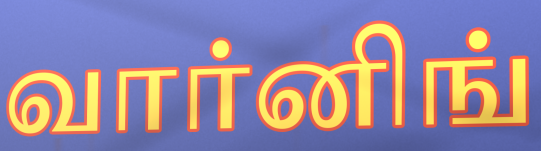
வார்னிங்